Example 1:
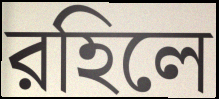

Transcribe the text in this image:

রহিলে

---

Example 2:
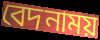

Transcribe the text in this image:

বেদনাময়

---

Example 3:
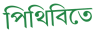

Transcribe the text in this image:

পিথিবিতে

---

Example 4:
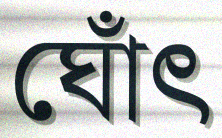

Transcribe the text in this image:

ঘোঁৎ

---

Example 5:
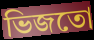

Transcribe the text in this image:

ভিজতো